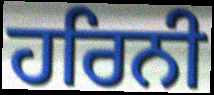
ਹਰਿਨੀ